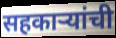
सहकाऱ्यांची